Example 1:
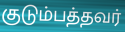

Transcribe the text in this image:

குடும்பத்தவர்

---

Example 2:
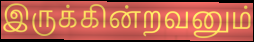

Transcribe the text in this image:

இருக்கின்றவனும்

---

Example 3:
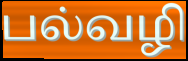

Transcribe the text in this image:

பல்வழி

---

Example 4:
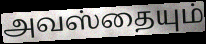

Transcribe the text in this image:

அவஸ்தையும்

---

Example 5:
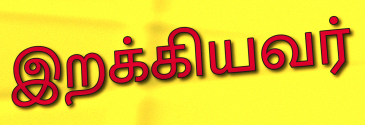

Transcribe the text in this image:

இறக்கியவர்